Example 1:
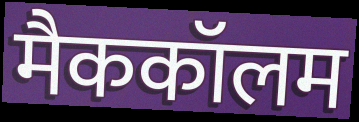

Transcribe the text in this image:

मैककॉलम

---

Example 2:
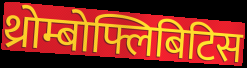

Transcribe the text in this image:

थ्रोम्बोफ्लिबिटिस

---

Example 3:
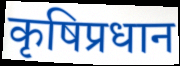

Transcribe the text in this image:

कृषिप्रधान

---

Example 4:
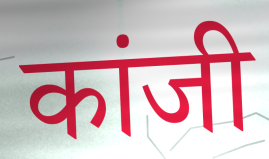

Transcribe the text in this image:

कांजी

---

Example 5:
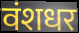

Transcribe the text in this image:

वंशधर